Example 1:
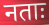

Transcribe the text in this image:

नताः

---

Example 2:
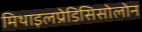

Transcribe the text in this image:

मिथाइलप्रेडिसिसोलोन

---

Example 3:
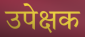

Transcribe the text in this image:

उपेक्षक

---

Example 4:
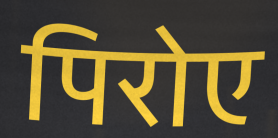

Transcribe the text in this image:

पिरोए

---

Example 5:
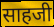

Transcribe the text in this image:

साहजी